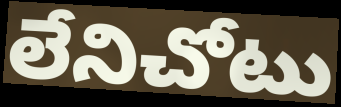
లేనిచోటు